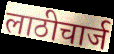
लाठीचार्ज